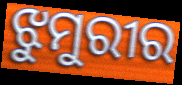
ଝୁମୁରୀର